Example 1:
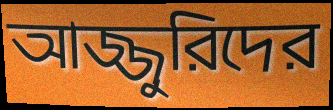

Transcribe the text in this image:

আজ্জুরিদের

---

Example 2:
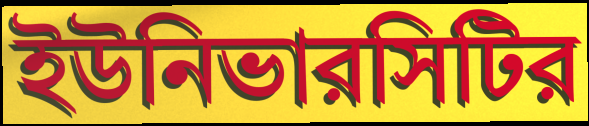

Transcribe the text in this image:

ইউনিভারসিটির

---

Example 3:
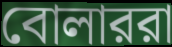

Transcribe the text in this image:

বোলাররা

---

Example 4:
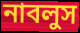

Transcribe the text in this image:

নাবলুস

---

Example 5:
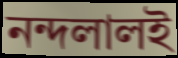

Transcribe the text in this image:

নন্দলালই